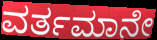
ವರ್ತಮಾನೇ